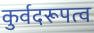
कुर्वदरूपत्व